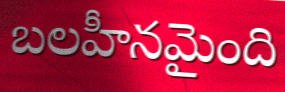
బలహీనమైంది